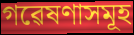
গৱেষণাসমূহ